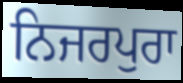
ਨਿਜਰਪੁਰਾ